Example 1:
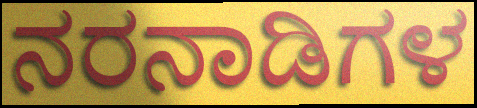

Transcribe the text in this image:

ನರನಾಡಿಗಳ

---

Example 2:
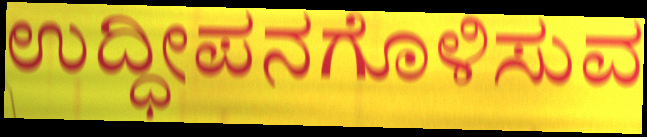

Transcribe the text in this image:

ಉದ್ಧೀಪನಗೊಳಿಸುವ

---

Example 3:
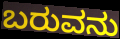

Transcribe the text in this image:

ಬರುವನು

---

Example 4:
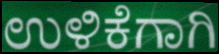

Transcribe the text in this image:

ಉಳಿಕೆಗಾಗಿ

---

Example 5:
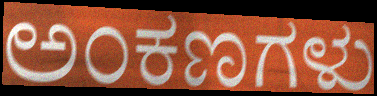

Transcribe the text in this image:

ಅಂಕಣಗಳು